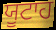
ਯੂਟਾਹ